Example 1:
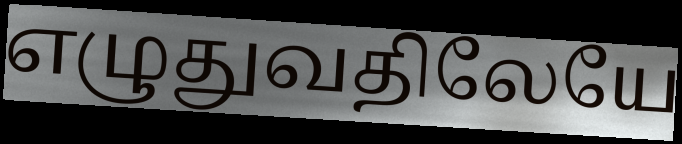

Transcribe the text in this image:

எழுதுவதிலேயே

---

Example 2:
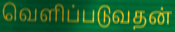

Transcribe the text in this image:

வெளிப்படுவதன்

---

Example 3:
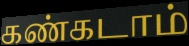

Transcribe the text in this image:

கண்கடாம்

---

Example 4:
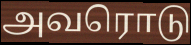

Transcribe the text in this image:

அவரொடு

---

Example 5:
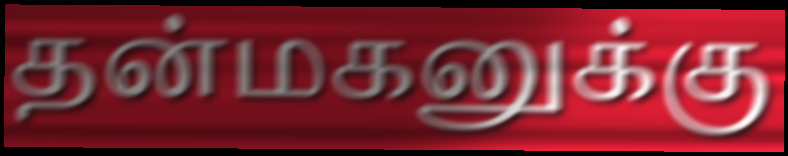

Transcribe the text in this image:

தன்மகனுக்கு